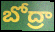
బోద్రా